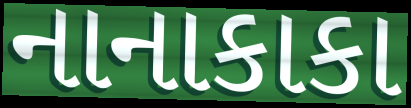
નાનાકાકા